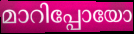
മാറിപ്പോയോ